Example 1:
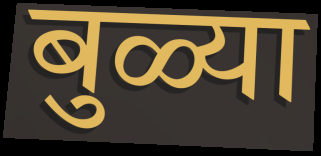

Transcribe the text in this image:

बुळ्या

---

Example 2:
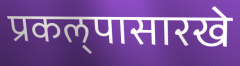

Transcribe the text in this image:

प्रकल्पासारखे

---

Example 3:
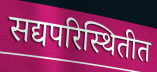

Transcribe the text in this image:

सद्यपरिस्थितीत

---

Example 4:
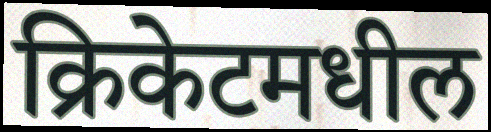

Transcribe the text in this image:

क्रिकेटमधील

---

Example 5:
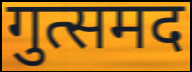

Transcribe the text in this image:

गुत्समद